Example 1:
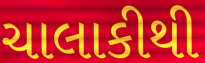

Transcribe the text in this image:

ચાલાકીથી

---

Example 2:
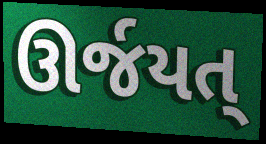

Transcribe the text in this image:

ઊર્જયત્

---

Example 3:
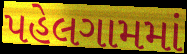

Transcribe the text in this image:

પહેલગામમાં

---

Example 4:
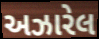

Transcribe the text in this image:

અઝારેલ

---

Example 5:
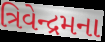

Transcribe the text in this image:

ત્રિવેન્દ્રમના